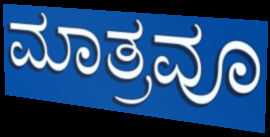
ಮಾತ್ರವೂ